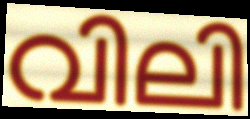
വിലി